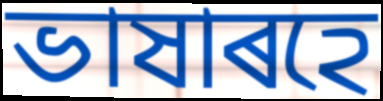
ভাষাৰহে